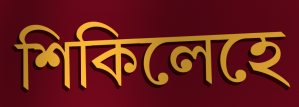
শিকিলেহে